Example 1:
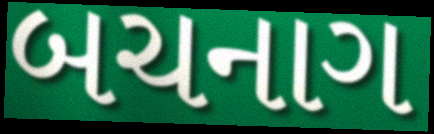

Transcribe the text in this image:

બચનાગ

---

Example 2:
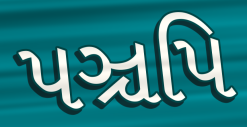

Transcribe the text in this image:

પઞ્ચપિ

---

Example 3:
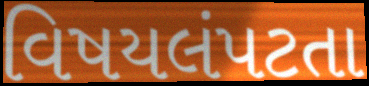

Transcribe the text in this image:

વિષયલંપટતા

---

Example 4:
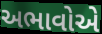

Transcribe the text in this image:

અભાવોએ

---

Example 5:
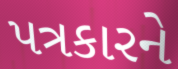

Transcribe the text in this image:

પત્રકારને